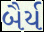
બૈર્ય